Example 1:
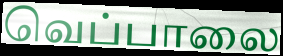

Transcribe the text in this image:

வெப்பாலை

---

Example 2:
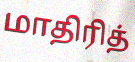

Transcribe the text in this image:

மாதிரித்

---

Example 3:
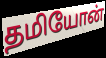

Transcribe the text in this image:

தமியோன்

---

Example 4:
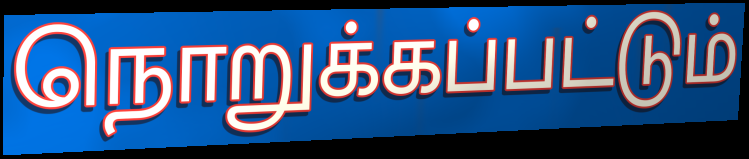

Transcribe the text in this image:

நொறுக்கப்பட்டும்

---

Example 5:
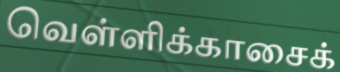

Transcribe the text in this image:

வெள்ளிக்காசைக்